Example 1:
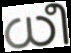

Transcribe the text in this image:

ധീ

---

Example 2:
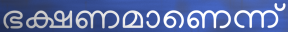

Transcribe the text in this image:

ഭക്ഷണമാണെന്ന്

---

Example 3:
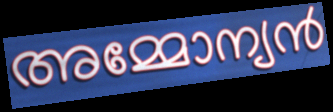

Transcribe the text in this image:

അമ്മോന്യൻ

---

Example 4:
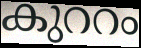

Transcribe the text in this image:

കുററം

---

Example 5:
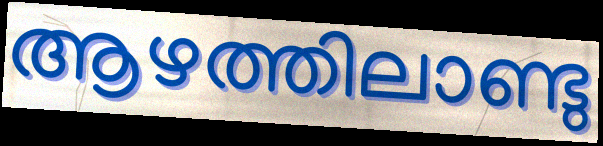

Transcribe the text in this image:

ആഴത്തിലാണ്ടു